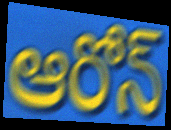
ఆరోన్